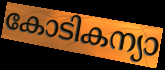
കോടികന്യാ